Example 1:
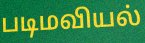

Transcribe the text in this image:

படிமவியல்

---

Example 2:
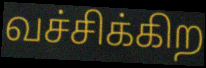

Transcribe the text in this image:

வச்சிக்கிற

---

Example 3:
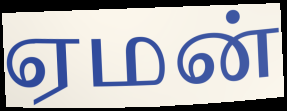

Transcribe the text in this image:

ஏமன்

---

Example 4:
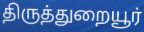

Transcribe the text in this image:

திருத்துறையூர்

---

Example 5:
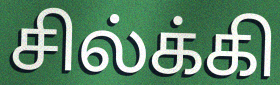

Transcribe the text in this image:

சில்க்கி